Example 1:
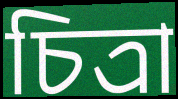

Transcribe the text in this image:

চিত্রা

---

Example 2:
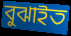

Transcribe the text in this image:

বুঝাইত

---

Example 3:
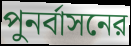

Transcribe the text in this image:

পুনর্বাসনের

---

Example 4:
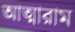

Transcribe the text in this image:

আত্মারাম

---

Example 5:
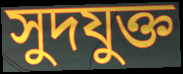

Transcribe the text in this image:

সুদযুক্ত